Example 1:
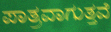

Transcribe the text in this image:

ಪಾತ್ರವಾಗುತ್ತವೆ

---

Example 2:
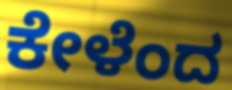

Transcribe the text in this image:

ಕೇಳೆಂದ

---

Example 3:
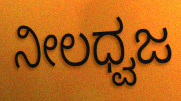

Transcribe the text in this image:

ನೀಲಧ್ವಜ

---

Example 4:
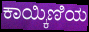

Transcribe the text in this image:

ಕಾಯ್ಕಿಣಿಯ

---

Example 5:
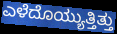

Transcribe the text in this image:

ಎಳೆದೊಯ್ಯುತ್ತಿತ್ತು